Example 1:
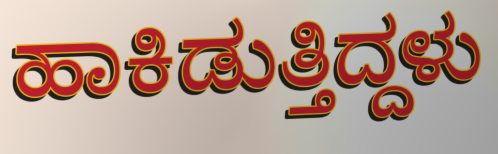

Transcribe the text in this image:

ಹಾಕಿಡುತ್ತಿದ್ದಳು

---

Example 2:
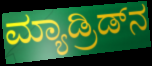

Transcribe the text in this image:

ಮ್ಯಾಡ್ರಿಡ್‌ನ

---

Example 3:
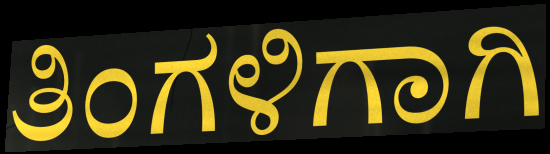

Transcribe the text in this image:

ತಿಂಗಳಿಗಾಗಿ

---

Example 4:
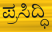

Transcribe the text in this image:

ಪ್ರಸಿದ್ಧಿ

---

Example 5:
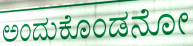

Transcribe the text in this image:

ಅಂದುಕೊಂಡನೋ